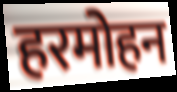
हरमोहन